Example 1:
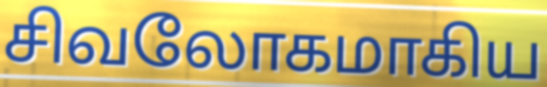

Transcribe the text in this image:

சிவலோகமாகிய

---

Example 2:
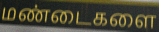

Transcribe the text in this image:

மண்டைகளை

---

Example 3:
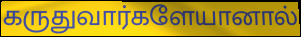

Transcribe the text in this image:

கருதுவார்களேயானால்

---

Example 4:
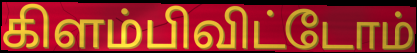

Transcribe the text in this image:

கிளம்பிவிட்டோம்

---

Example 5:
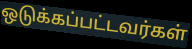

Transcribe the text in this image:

ஒடுக்கப்பட்டவர்கள்